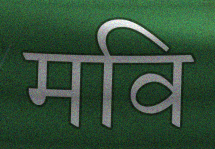
मवि